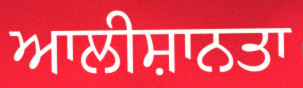
ਆਲੀਸ਼ਾਨਤਾ